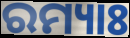
ରମ୍ୟାଃ